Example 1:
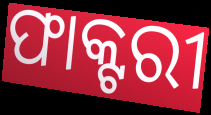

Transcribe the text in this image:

ଫାକ୍ଟରୀ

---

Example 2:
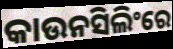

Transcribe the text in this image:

କାଉନସିଲିଂରେ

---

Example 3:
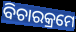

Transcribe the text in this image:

ବିଚାରକ୍ରମେ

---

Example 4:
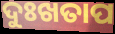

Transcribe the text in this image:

ଦୁଃଖତାପ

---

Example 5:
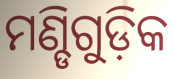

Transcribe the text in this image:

ମଣ୍ଡିଗୁଡ଼ିକ